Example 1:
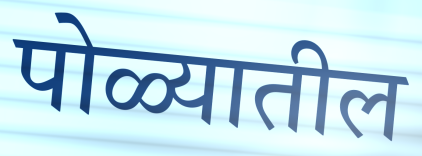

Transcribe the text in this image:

पोळ्यातील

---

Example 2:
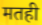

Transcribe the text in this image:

मतही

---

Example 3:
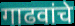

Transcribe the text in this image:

गाढवांचे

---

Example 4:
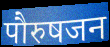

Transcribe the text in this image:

पौरुषजन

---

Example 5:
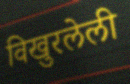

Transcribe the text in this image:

विखुरलेली